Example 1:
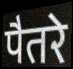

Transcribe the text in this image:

पैतरे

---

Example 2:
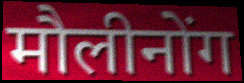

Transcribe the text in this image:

मौलीनोंग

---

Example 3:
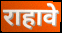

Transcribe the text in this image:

राहावे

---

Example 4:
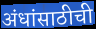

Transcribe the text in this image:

अंधांसाठीची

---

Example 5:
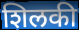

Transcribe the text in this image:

शिलकी